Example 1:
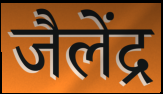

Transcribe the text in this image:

जैलेंद्र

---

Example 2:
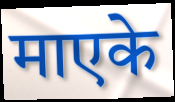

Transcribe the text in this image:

माएके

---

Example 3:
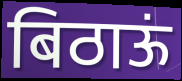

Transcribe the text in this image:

बिठाऊं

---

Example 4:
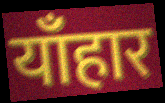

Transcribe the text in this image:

याँहार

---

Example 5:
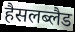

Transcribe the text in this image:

हैसलब्लैड